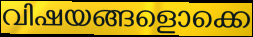
വിഷയങ്ങളൊക്കെ